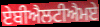
ਏਬੀਐਲਟੀਐਮਏ